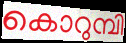
കൊറുമ്പി